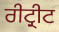
ਰੀਟ੍ਰੀਟ